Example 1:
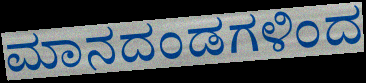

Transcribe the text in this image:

ಮಾನದಂಡಗಳಿಂದ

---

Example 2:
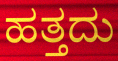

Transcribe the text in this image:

ಹತ್ತದು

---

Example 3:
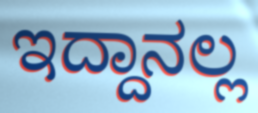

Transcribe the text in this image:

ಇದ್ದಾನಲ್ಲ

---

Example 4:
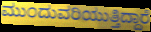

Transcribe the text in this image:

ಮುಂದುವರಿಯುತ್ತಿದ್ದಾರೆ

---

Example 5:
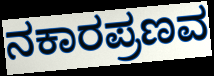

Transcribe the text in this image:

ನಕಾರಪ್ರಣವ